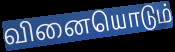
வினையொடும்